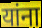
यांना